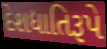
દેશદ્યાતિરૂપે